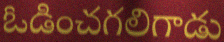
ఓడించగలిగాడు